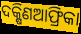
ଦକ୍ଷିଣଆଫ୍ରିକା